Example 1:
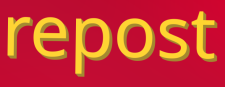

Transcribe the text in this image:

repost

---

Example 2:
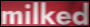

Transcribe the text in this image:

milked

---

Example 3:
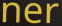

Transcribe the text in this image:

ner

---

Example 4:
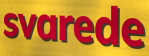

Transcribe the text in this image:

svarede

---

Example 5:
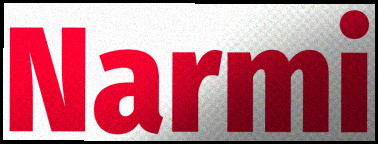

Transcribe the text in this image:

Narmi